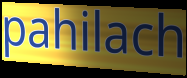
pahilach